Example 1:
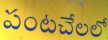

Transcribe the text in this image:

పంటచేలలో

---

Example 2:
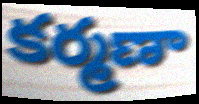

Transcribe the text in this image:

కర్మణా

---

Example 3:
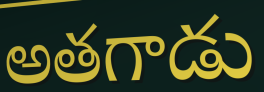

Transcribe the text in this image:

అతగాడు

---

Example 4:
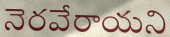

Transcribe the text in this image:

నెరవేరాయని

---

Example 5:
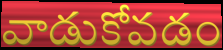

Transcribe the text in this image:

వాడుకోవడం